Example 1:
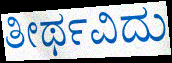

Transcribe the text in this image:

ತೀರ್ಥವಿದು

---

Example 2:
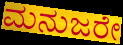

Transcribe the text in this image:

ಮನುಜರೇ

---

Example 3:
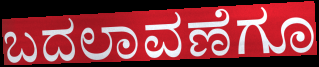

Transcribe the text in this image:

ಬದಲಾವಣೆಗೂ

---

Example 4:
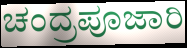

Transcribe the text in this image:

ಚಂದ್ರಪೂಜಾರಿ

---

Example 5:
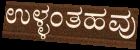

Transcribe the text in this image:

ಉಳ್ಳಂತಹವು